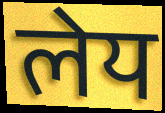
लेय